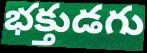
భక్తుడగు